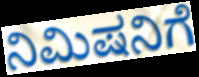
ನಿಮಿಷನಿಗೆ